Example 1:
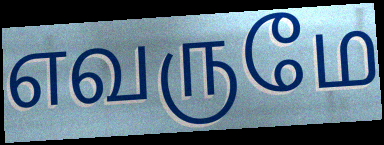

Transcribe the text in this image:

எவருமே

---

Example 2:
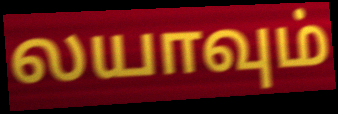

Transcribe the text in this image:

லயாவும்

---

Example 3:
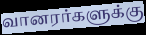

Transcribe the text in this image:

வானரர்களுக்கு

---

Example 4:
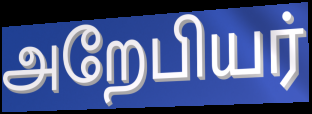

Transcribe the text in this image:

அறேபியர்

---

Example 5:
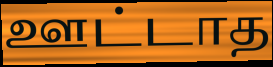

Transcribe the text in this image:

ஊட்டாத